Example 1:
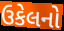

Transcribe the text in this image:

ઉકેલનો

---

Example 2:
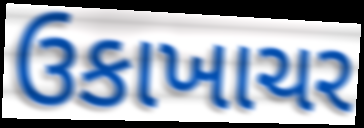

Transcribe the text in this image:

ઉકાખાચર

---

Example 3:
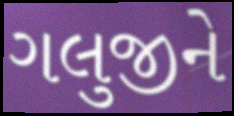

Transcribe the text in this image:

ગલુજીને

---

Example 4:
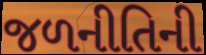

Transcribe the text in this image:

જળનીતિની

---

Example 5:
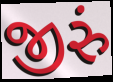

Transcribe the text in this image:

જીરું